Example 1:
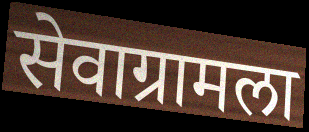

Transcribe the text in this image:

सेवाग्रामला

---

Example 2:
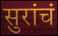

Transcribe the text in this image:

सुरांचं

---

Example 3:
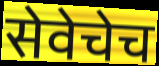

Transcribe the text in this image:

सेवेचेच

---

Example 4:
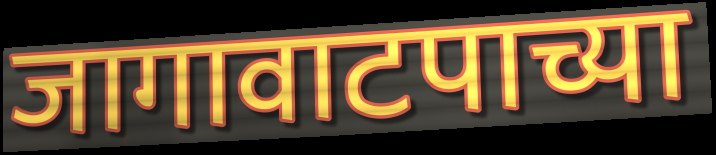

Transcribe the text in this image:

जागावाटपाच्या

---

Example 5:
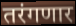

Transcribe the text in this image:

तरंगणार